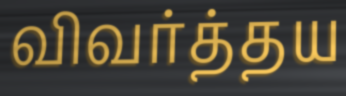
விவர்த்தய